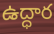
ఉద్ధార